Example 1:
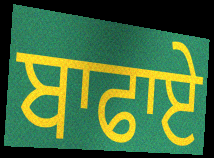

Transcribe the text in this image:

ਬਾਫਾਏ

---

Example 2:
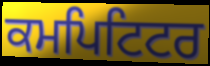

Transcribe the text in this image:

ਕਮਪਿਟਿਟਰ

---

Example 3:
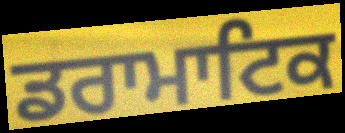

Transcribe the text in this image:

ਡਰਾਮਾਟਿਕ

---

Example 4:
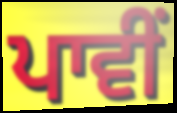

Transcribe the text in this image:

ਪਾਵੀਂ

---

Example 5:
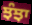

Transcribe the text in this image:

ਝੰਝਾ